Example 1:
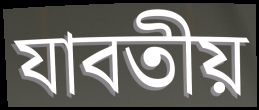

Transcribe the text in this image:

যাবতীয়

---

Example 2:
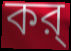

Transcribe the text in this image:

কর্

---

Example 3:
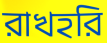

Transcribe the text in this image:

রাখহরি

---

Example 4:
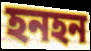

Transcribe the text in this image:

হনহন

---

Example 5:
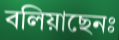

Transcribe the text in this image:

বলিয়াছেনঃ